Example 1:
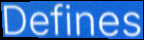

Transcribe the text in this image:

Defines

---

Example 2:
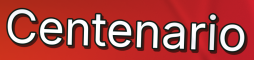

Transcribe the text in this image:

Centenario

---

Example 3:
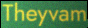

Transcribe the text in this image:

Theyvam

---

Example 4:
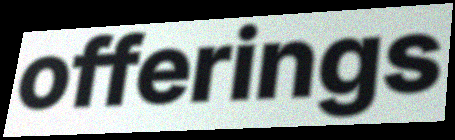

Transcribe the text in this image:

offerings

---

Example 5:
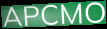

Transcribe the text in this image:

APCMO